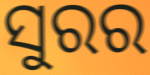
ସୁରର